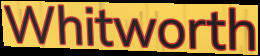
Whitworth